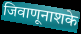
जिवाणूनाशके